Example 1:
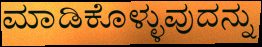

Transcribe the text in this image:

ಮಾಡಿಕೊಳ್ಳುವುದನ್ನು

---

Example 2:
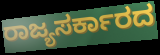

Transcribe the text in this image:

ರಾಜ್ಯಸರ್ಕಾರದ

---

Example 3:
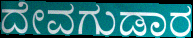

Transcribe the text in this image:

ದೇವಗುಡಾರ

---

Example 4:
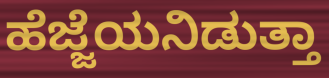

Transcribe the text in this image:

ಹೆಜ್ಜೆಯನಿಡುತ್ತಾ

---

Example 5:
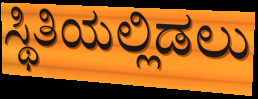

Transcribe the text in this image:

ಸ್ಥಿತಿಯಲ್ಲಿಡಲು